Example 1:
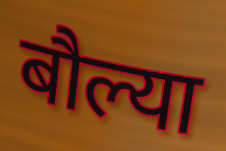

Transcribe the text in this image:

बौल्या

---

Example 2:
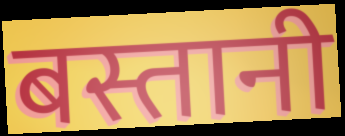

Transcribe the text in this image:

बस्तानी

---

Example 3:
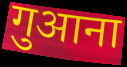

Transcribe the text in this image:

गुआना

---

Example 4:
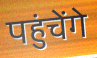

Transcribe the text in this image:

पहुंचेंगे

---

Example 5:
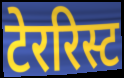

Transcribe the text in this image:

टेररिस्ट